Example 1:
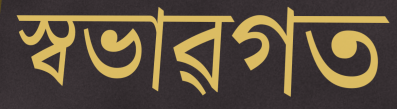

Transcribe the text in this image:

স্বভাৱগত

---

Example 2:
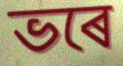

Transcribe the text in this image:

ভৰে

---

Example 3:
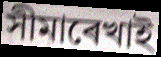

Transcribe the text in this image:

সীমাৰেখাই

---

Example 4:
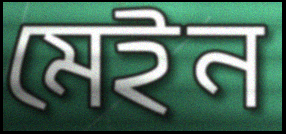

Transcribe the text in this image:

মেইন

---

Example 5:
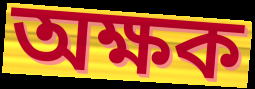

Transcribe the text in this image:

অক্ষক